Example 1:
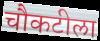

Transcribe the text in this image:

चौकटीला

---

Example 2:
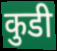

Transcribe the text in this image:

कुडी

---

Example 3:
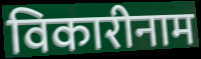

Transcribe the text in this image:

विकारीनाम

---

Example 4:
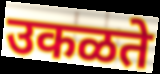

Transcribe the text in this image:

उकळते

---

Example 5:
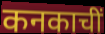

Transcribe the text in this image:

कनकाचीं